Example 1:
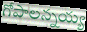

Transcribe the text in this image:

గోపాలన్నయ్య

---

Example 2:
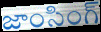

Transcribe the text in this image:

జాంసింగ్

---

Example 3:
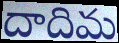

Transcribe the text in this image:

దాదిమ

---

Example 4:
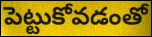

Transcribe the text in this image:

పెట్టుకోవడంతో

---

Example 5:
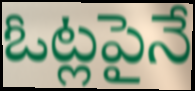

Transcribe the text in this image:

ఓట్లపైనే